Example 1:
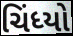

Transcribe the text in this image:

ચિંધ્યો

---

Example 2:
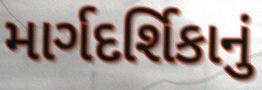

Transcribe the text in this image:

માર્ગદર્શિકાનું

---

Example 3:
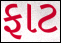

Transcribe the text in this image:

ફાટ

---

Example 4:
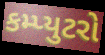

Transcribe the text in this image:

કમ્પ્યુટરો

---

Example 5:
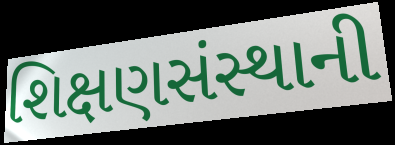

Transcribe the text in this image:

શિક્ષણસંસ્થાની